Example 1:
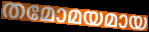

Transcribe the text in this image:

തമോമയമായ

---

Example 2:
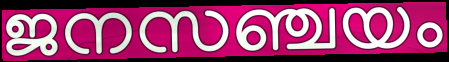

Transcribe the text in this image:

ജനസഞ്ചയം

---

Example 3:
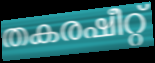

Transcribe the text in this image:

തകരഷീറ്റ്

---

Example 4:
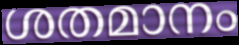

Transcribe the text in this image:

ശതമാനം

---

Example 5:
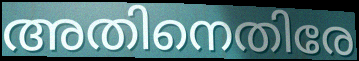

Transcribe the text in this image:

അതിനെതിരേ